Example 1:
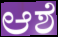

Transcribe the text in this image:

ಆಶೆ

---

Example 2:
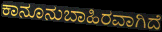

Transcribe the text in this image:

ಕಾನೂನುಬಾಹಿರವಾಗಿದೆ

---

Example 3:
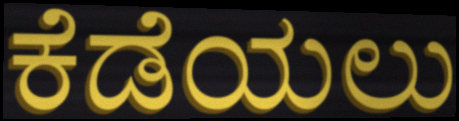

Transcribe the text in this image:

ಕೆಡೆಯಲು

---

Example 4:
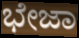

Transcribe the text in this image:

ಭೇಜಾ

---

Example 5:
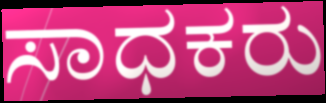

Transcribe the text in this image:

ಸಾಧಕರು